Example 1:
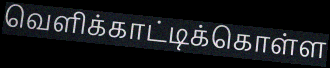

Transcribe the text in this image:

வெளிக்காட்டிக்கொள்ள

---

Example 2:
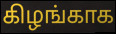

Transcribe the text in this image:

கிழங்காக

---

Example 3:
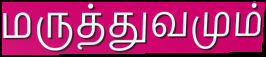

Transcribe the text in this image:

மருத்துவமும்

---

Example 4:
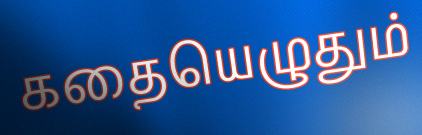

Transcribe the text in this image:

கதையெழுதும்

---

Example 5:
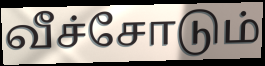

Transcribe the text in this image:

வீச்சோடும்